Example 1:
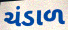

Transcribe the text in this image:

ચંડાળ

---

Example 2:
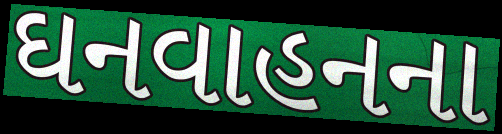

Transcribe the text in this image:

ઘનવાહનના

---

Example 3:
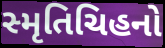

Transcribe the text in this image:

સ્મૃતિચિહનો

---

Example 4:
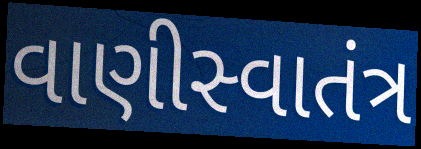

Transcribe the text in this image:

વાણીસ્વાતંત્ર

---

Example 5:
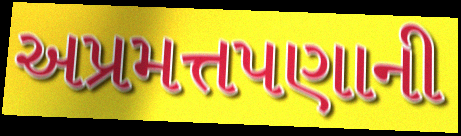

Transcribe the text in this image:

અપ્રમત્તપણાની